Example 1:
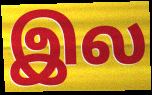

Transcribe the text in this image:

இல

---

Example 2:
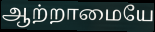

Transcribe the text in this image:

ஆற்றாமையே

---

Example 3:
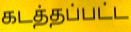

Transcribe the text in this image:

கடத்தப்பட்ட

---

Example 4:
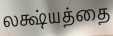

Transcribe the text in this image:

லக்ஷ்யத்தை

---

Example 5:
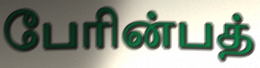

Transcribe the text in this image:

பேரின்பத்